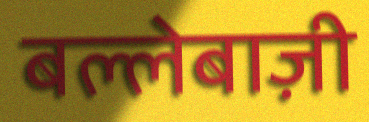
बल्‍लेबाज़ी